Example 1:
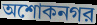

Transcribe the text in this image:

অশোকনগর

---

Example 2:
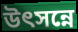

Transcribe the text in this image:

উৎসন্নে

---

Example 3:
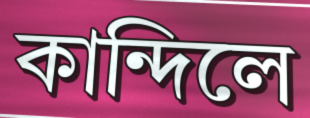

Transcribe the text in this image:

কান্দিলে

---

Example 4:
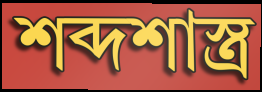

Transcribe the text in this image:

শব্দশাস্ত্র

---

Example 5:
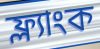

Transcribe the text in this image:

ফ্ল্যাংক